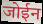
जोईन